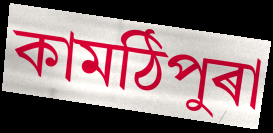
কামঠিপুৰা